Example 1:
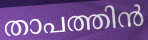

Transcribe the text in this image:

താപത്തിൻ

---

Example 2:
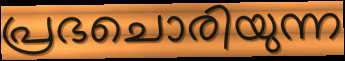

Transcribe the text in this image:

പ്രഭചൊരിയുന്ന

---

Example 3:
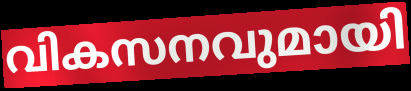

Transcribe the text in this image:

വികസനവുമായി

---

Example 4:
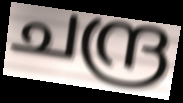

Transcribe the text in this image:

ചന്ദ്ര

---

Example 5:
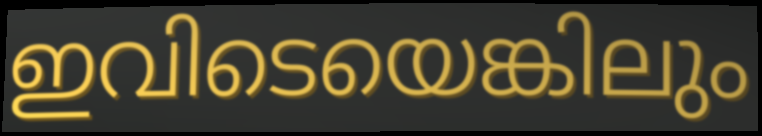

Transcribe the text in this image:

ഇവിടെയെങ്കിലും